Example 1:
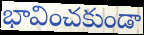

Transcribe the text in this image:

భావించకుండా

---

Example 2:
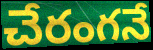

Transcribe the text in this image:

చేరంగనే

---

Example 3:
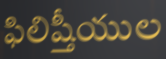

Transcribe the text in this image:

ఫిలిష్తీయుల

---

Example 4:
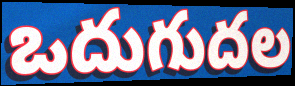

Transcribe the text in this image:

ఒదుగుదల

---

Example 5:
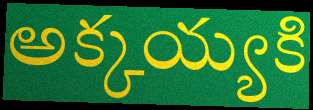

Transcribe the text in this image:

అక్కయ్యకి